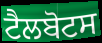
ਟੈਲਬੋਟਸ